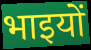
भाइयों